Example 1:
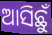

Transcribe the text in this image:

ଆସିଛୁଁ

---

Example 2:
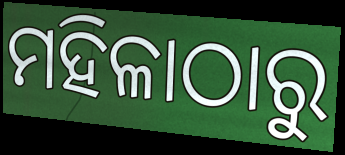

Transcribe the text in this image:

ମହିଳାଠାରୁ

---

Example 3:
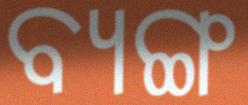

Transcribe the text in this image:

ବ୍ୟଙ୍ଗ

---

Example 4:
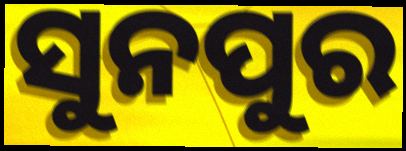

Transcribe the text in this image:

ସୁନପୁର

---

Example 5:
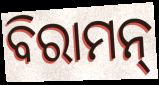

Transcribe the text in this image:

ବିରାମନ୍